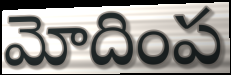
మోదింప